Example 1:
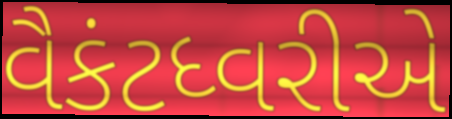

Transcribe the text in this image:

વૈકંટધ્વરીએ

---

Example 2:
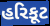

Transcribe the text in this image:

હરિકૂટ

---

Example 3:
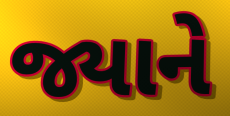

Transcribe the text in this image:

જ્યાને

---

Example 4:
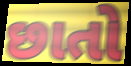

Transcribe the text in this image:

છાતો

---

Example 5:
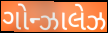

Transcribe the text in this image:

ગોન્ઝાલેઝ